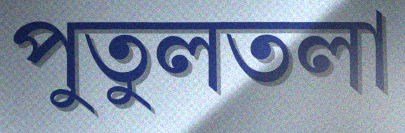
পুতুলতলা